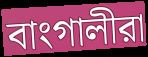
বাংগালীরা